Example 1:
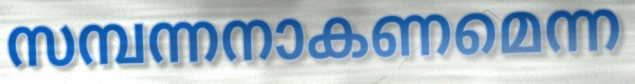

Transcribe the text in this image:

സമ്പന്നനാകണമെന്ന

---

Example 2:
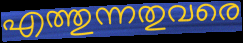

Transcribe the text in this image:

എത്തുന്നതുവരെ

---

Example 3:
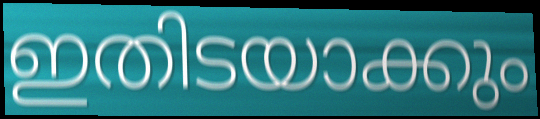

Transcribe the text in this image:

ഇതിടയാക്കും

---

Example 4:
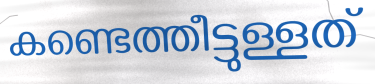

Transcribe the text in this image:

കണ്ടെത്തീട്ടുള്ളത്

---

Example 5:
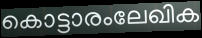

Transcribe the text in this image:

കൊട്ടാരംലേഖിക